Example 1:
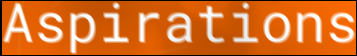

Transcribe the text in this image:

Aspirations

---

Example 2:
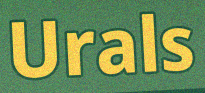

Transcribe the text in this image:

Urals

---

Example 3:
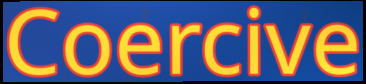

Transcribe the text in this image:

Coercive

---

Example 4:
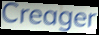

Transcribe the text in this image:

Creager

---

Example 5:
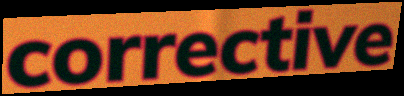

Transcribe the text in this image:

corrective